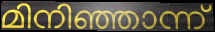
മിനിഞ്ഞാന്ന്